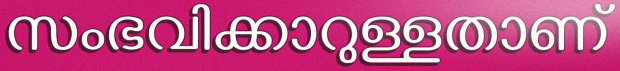
സംഭവിക്കാറുള്ളതാണ്